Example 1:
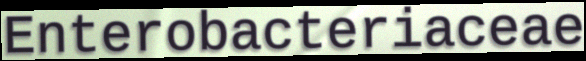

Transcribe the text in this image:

Enterobacteriaceae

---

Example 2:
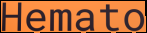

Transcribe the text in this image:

Hemato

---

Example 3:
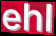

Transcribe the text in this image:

ehl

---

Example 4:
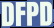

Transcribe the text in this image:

DFPD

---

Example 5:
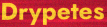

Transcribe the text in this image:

Drypetes